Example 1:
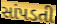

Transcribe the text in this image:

સાંપડતી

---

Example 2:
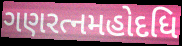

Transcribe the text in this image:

ગણરત્નમહોદધિ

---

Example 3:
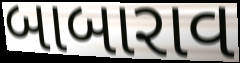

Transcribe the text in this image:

બાબારાવ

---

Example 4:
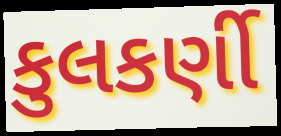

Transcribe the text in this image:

કુલકર્ણી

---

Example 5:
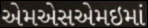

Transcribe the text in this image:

એમએસએમઇમાં